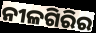
ନୀଳଗିରିର